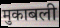
मुकाबली